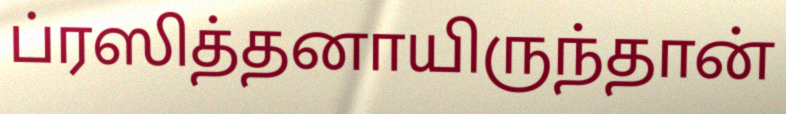
ப்ரஸித்தனாயிருந்தான்